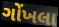
ગોંખલા